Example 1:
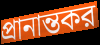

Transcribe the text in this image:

প্রানান্তকর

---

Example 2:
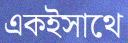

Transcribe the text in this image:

একইসাথে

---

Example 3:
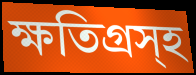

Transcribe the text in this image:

ক্ষতিগ্রস্হ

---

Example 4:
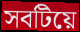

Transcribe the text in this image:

সবটিয়ে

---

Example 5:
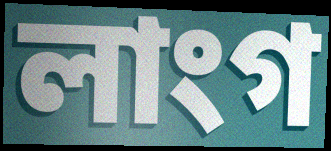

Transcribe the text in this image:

লাংগ